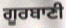
ਗੂਰਬਾਣੀ